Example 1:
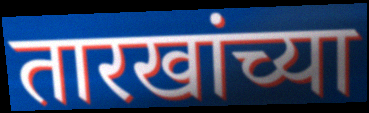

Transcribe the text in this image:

तारखांच्या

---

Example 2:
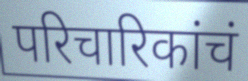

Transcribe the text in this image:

परिचारिकांचं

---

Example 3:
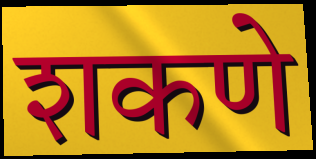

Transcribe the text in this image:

शकणे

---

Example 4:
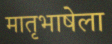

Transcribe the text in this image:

मातृभाषेला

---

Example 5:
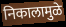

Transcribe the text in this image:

निकालामुळे